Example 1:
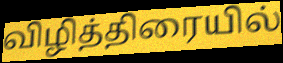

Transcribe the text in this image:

விழித்திரையில்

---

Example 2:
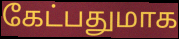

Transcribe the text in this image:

கேட்பதுமாக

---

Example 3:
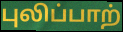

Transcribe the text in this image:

புலிப்பாற்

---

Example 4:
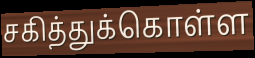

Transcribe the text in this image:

சகித்துக்கொள்ள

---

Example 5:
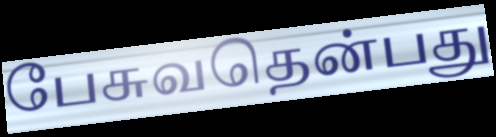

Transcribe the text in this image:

பேசுவதென்பது